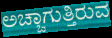
ಅಚ್ಚಾಗುತ್ತಿರುವ